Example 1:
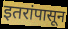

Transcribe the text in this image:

इतरांपासून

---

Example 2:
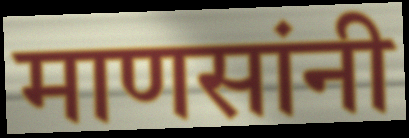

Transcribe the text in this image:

माणसांनी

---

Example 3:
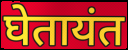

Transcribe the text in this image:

घेतायंत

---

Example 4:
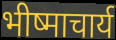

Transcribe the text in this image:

भीष्माचार्य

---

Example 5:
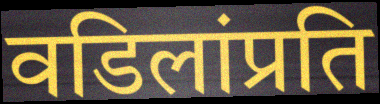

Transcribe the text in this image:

वडिलांप्रति